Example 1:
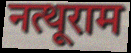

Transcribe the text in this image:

नत्थूराम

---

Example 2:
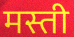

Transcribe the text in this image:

मस्ती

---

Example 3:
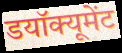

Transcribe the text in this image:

डयॉक्‍यूमेंट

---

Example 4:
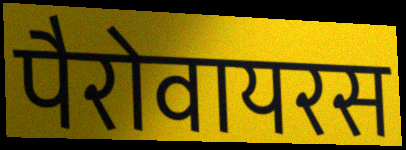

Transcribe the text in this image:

पैरोवायरस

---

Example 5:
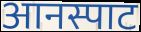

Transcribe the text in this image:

आनस्पाट